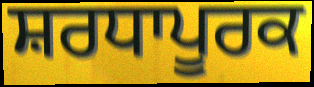
ਸ਼ਰਧਾਪੂਰਕ